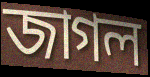
জাগল